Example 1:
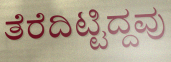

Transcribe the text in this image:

ತೆರೆದಿಟ್ಟಿದ್ದವು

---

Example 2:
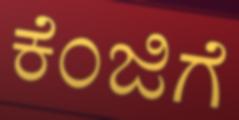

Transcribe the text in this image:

ಕೆಂಜಿಗೆ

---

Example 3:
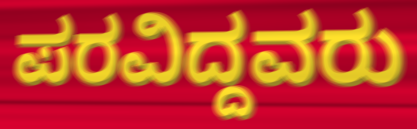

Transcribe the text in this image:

ಪರವಿದ್ದವರು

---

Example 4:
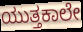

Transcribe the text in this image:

ಯುತ್ತಕಾಲೇ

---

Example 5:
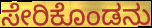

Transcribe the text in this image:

ಸೇರಿಕೊಂಡನು